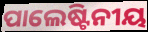
ପାଲେଷ୍ଟିନୀୟ